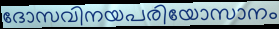
ദോസവിനയപരിയോസാനം